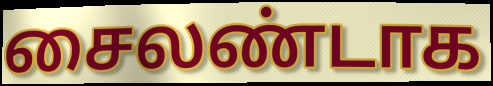
சைலண்டாக